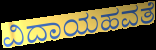
ವಿದಾಯಹವತೆ